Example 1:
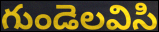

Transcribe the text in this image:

గుండెలవిసి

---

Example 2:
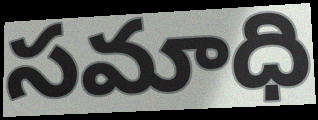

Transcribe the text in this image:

సమాధి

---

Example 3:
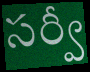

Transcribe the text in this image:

సర్వీ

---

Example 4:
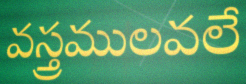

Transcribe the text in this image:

వస్త్రములవలే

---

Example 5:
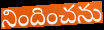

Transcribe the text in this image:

నిందించను